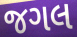
જગલ